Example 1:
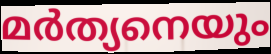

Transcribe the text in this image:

മർത്യനെയും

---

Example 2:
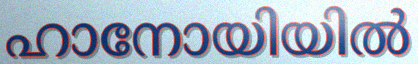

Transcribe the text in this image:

ഹാനോയിയിൽ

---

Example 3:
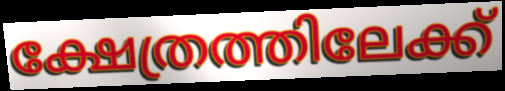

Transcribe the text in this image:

ക്ഷേത്രത്തിലേക്ക്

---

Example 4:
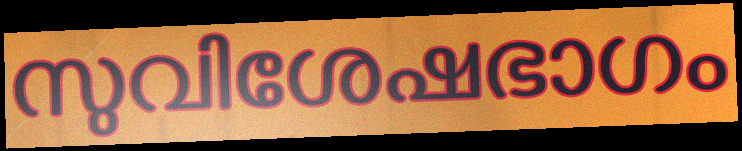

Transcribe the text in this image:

സുവിശേഷഭാഗം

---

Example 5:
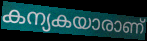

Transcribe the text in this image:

കന്യകയാരാണ്